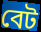
বেট